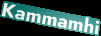
Kammamhi